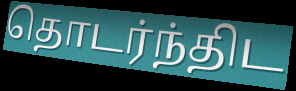
தொடர்ந்திட